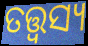
ତତ୍ତ୍ୱସ୍ୟ